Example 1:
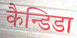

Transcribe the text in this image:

कैन्डिडा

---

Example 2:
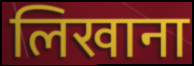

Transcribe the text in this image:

लिखाना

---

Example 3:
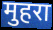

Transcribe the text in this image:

मुहरा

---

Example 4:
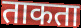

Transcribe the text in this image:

ताकता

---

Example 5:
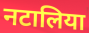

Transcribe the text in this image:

नटालिया